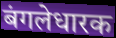
बंगलेधारक